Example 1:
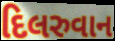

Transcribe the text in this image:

દિલરુવાન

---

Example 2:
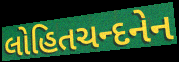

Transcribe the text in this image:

લોહિતચન્દનેન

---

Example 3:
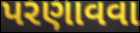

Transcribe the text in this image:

પરણાવવા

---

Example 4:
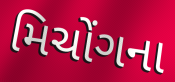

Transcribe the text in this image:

મિચોંગના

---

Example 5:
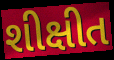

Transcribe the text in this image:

શીક્ષીત